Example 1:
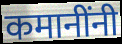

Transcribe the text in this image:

कमानींनी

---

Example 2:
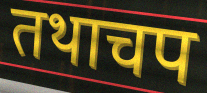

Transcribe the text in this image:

तथाचप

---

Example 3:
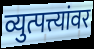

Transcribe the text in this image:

व्युत्पत्त्यांवर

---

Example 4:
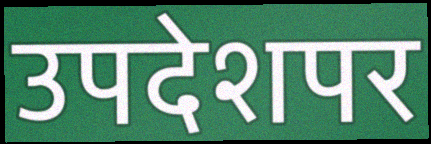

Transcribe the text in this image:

उपदेशपर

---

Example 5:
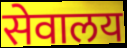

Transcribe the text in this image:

सेवालय